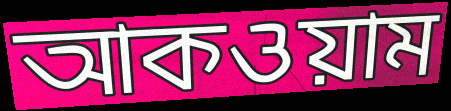
আকওয়াম